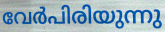
വേർപിരിയുന്നു